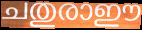
ചതുരാഈ